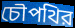
চৌপথির